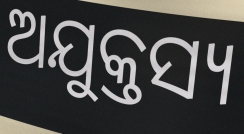
ଅଯୁକ୍ତସ୍ୟ